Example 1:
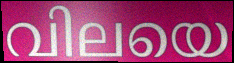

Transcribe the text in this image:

വിലയെ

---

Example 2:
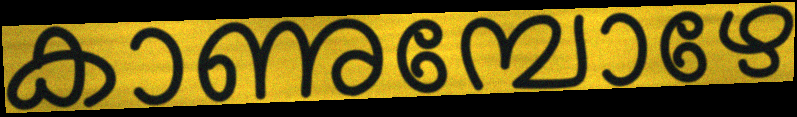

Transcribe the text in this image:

കാണുമ്പോഴേ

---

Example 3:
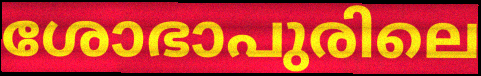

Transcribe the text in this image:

ശോഭാപുരിലെ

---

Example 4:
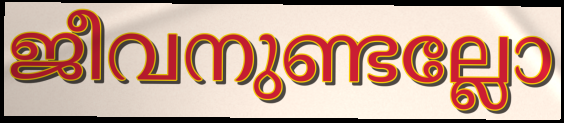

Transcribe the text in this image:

ജീവനുണ്ടല്ലോ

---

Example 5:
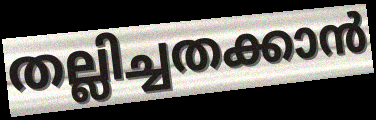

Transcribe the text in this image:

തല്ലിച്ചതക്കാൻ